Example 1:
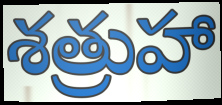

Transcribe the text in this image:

శత్రుహా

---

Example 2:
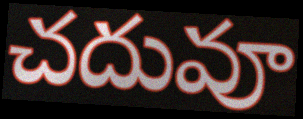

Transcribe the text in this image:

చదువూ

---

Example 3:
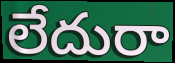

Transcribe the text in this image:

లేదురా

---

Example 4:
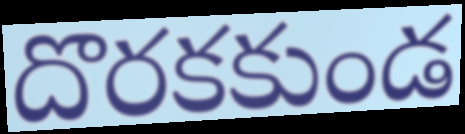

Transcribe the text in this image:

దొరకకుండ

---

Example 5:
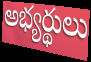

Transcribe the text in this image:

అభ్యర్థులు